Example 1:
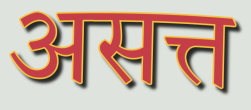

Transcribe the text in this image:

असत्त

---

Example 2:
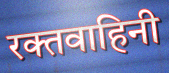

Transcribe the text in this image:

रक्तवाहिनी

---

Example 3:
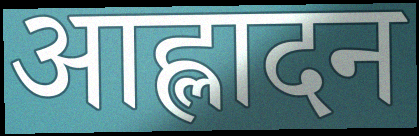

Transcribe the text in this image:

आह्लादन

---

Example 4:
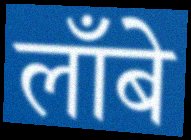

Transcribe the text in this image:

लाँबे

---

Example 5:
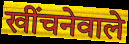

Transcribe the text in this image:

खींचनेवाले